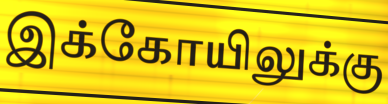
இக்கோயிலுக்கு